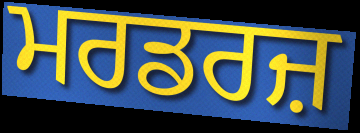
ਮਰਡਰਜ਼